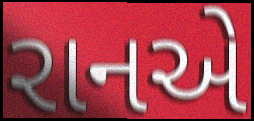
રાનએ